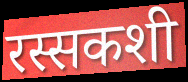
रस्सकशी